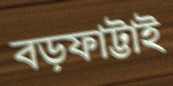
বড়ফাট্টাই